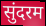
सुंदरम